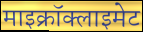
माइक्रॉक्लाइमेट